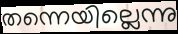
തന്നെയില്ലെന്നു